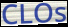
CLOs